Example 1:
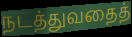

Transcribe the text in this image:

நடத்துவதைத்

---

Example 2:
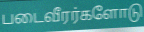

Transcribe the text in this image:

படைவீரர்களோடு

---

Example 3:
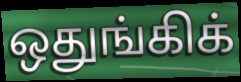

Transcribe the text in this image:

ஒதுங்கிக்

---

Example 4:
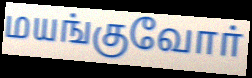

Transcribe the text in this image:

மயங்குவோர்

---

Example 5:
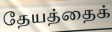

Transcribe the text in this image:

தேயத்தைக்